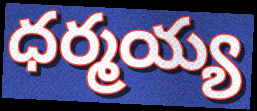
ధర్మయ్య